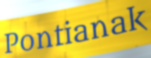
Pontianak